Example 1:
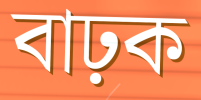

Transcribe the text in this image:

বাঢ়ক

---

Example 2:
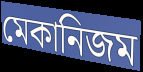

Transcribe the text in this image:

মেকানিজম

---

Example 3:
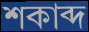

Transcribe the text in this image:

শকাব্দ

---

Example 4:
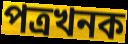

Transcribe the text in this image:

পত্ৰখনক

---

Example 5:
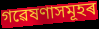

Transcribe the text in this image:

গৱেষণাসমূহৰ